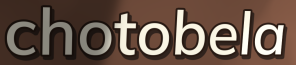
chotobela